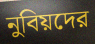
নুবিয়দের